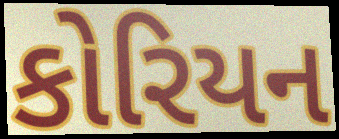
કોરિયન